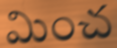
మించ